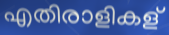
എതിരാളികള്